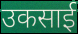
उकसाई